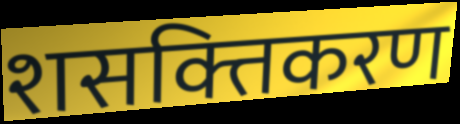
शसक्तिकरण